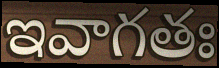
ఇవాగతః